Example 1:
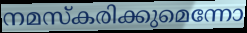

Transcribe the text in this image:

നമസ്കരിക്കുമെന്നോ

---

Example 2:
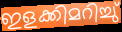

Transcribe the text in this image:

ഇളക്കിമറിച്ചു്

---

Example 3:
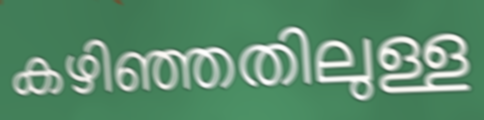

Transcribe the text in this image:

കഴിഞ്ഞതിലുള്ള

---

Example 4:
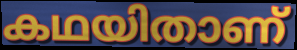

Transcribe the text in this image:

കഥയിതാണ്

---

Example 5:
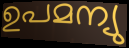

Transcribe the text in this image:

ഉപമന്യു